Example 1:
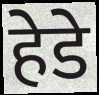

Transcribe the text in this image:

हेडे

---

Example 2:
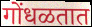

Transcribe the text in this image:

गोंधळतात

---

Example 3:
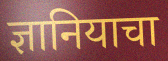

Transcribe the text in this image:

ज्ञानियाचा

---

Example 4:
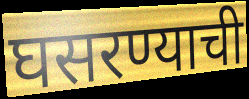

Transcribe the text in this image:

घसरण्याची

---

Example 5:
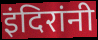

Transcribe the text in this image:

इंदिरांनी